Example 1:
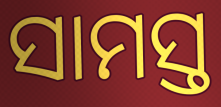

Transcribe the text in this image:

ସାମସ୍ତ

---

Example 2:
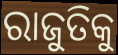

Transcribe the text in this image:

ରାଜୁତିକୁ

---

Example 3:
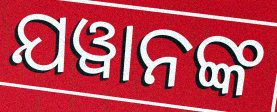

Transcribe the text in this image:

ଯୱାନଙ୍କ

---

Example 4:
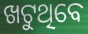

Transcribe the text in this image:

ଖଟୁଥିବେ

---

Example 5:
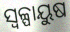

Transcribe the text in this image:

ସ୍ୱଳ୍ପାୟୁଷ